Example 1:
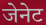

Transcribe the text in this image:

जेनेट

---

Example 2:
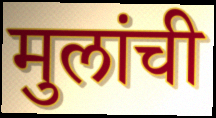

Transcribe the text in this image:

मुलांची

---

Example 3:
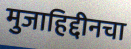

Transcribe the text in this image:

मुजाहिद्दीनचा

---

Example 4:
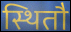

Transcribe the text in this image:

स्थितौ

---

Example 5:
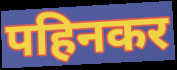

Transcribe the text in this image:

पहिनकर